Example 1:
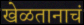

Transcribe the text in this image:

खेळतानाचं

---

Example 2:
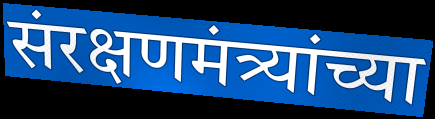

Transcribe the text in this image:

संरक्षणमंत्र्यांच्या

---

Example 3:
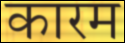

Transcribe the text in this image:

कारम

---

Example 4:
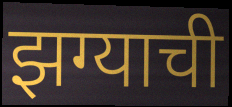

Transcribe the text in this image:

झग्याची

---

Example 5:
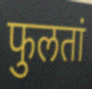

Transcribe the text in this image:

फुलतां